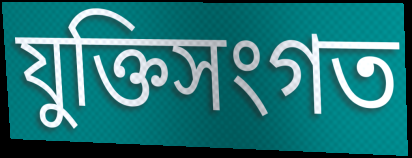
যুক্তিসংগত